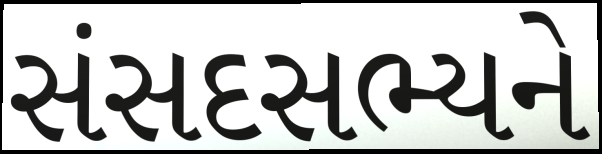
સંસદસભ્યને